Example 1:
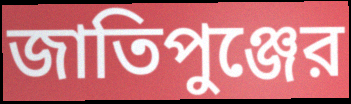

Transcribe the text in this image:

জাতিপুঞ্জের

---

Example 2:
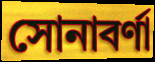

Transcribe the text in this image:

সোনাবর্ণা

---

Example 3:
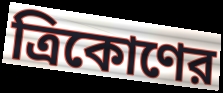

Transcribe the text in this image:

ত্রিকোণের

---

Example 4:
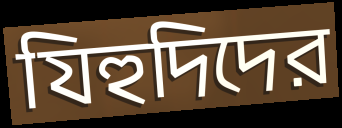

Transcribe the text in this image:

যিহুদিদের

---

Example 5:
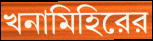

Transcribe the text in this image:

খনামিহিরের